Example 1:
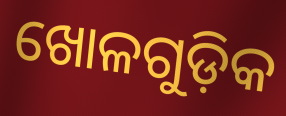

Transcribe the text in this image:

ଖୋଳଗୁଡ଼ିକ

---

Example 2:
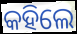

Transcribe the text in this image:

କହିଲେ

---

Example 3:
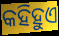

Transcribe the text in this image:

କହିହୁଏ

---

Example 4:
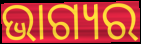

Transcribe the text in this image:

ଭାଗ୍ୟର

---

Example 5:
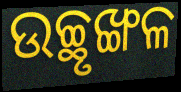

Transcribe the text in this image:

ଉଚ୍ଛୃଙ୍ଖଳ